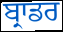
ਬ੍ਰਾਡਰ